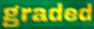
graded